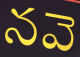
నవె